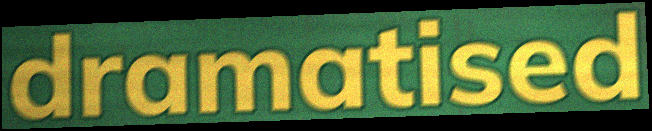
dramatised